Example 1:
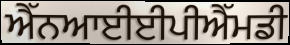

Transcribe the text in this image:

ਐੱਨਆਈਈਪੀਐੱਮਡੀ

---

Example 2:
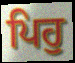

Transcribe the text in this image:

ਪਿਹੁ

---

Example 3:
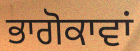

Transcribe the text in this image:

ਭਾਗੋਕਾਵਾਂ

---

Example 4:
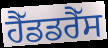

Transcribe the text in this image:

ਹੈੱਡਡਰੈੱਸ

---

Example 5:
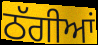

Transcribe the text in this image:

ਠੱਗੀਆਂ